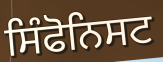
ਸਿੰਫੋਨਿਸਟ